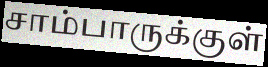
சாம்பாருக்குள்